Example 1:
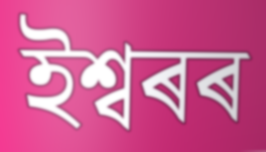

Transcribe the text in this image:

ইশ্বৰৰ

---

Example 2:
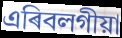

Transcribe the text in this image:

এৰিবলগীয়া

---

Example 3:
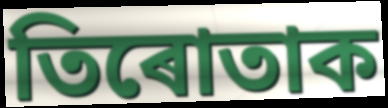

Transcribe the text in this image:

তিৰোতাক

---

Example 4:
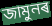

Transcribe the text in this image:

জামুনৰ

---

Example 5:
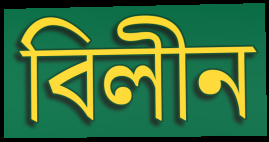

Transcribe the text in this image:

বিলীন